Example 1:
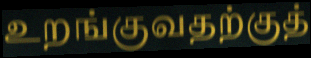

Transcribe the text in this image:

உறங்குவதற்குத்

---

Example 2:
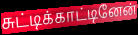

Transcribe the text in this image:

சுட்டிக்காட்டினேன்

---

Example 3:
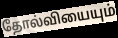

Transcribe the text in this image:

தோல்வியையும்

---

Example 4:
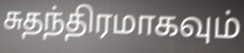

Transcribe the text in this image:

சுதந்திரமாகவும்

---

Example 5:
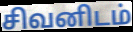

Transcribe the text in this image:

சிவனிடம்